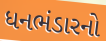
ધનભંડારનો